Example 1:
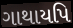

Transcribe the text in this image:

ગાથાયપિ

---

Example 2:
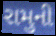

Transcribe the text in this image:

રામુની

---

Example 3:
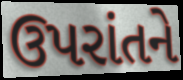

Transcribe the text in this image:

ઉપરાંતને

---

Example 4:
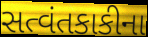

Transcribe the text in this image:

સત્વંતકાકીના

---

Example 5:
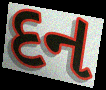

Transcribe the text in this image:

દન